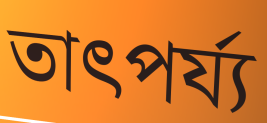
তাৎপৰ্য্য